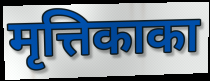
मृत्तिकाका